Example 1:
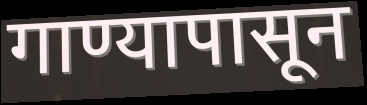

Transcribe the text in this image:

गाण्यापासून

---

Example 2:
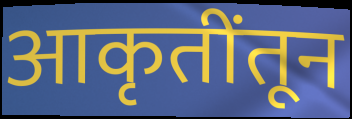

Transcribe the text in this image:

आकृतींतून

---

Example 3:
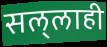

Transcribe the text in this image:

सल्लाही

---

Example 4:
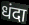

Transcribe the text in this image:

धंदा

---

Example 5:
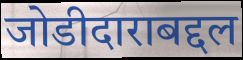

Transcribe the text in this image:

जोडीदाराबद्दल